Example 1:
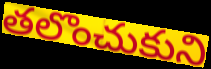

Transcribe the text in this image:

తలొంచుకుని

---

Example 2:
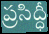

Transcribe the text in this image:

ప్రసిద్ధీ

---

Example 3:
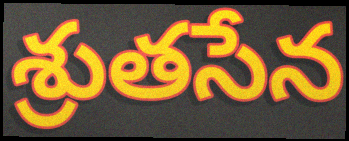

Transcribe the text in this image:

శ్రుతసేన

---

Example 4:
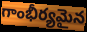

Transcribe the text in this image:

గాంభీర్యమైన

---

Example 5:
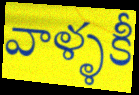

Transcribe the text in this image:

వాళ్ళకీ